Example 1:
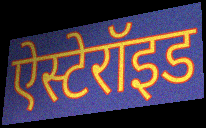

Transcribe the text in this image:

ऐस्टेरॉइड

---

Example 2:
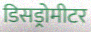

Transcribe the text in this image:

डिसड्रोमीटर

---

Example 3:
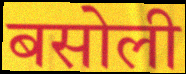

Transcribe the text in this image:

बसोली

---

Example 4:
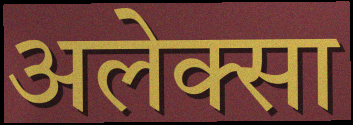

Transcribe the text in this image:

अलेक्‍सा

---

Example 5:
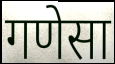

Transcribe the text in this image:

गणेसा